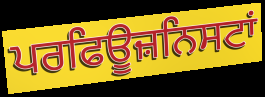
ਪਰਫਿਊਜ਼ਨਿਸਟਾਂ